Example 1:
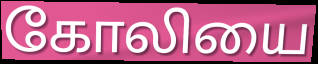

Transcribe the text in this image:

கோலியை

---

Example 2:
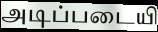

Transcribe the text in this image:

அடிப்படையி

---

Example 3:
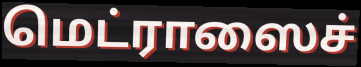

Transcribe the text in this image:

மெட்ராஸைச்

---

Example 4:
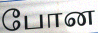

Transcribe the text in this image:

போன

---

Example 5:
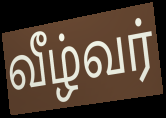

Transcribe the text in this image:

வீழ்வர்